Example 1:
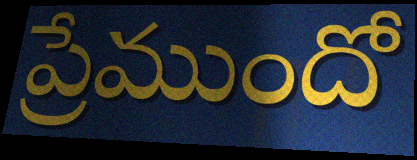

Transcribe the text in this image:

ప్రేముందో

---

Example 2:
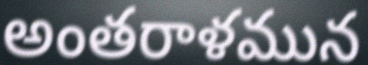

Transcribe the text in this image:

అంతరాళమున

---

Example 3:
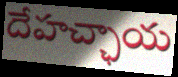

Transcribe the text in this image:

దేహచ్ఛాయ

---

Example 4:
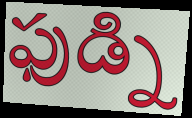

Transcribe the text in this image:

ఫుడ్ని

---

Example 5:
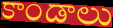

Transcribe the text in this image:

కాండాలు